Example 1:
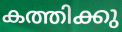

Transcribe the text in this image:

കത്തിക്കു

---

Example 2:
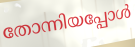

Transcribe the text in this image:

തോന്നിയപ്പോൾ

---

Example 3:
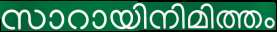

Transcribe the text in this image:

സാറായിനിമിത്തം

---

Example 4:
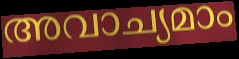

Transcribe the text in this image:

അവാച്യമാം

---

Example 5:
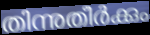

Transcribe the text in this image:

തിന്നുതീർക്കും